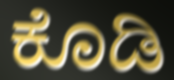
ಕೊಡಿ